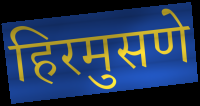
हिरमुसणे